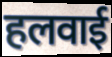
हलवाई